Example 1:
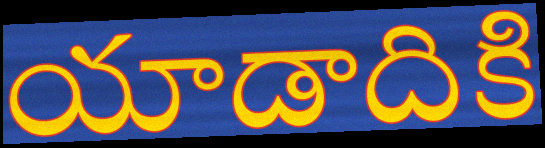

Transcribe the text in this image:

యాడాదికి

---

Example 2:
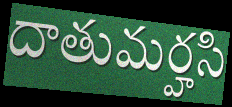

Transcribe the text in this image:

దాతుమర్హసి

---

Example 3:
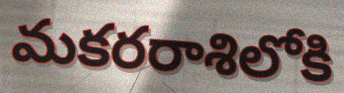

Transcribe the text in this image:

మకరరాశిలోకి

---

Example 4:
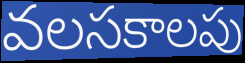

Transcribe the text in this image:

వలసకాలపు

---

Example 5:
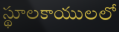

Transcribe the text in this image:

స్థూలకాయులలో